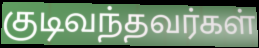
குடிவந்தவர்கள்